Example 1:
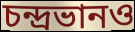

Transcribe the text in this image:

চন্দ্রভানও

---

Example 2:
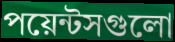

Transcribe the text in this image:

পয়েন্টসগুলো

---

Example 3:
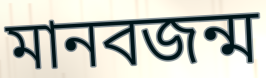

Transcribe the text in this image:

মানবজন্ম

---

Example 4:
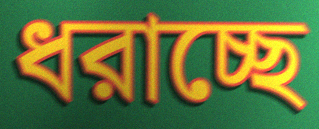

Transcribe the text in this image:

ধরাচ্ছে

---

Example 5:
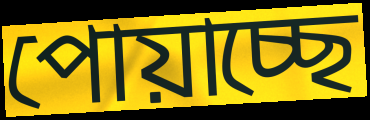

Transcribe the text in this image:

পোয়াচ্ছে